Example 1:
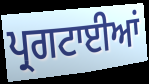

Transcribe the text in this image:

ਪ੍ਰਗਟਾਈਆਂ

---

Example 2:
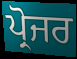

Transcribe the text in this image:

ਪ੍ਰੋਜਰ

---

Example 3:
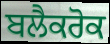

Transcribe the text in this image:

ਬਲੈਕਰੋਕ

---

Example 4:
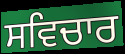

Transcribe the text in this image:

ਸਵਿਚਾਰ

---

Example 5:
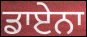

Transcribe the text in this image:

ਡਾਏਨਾ